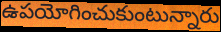
ఉపయోగించుకుంటున్నారు